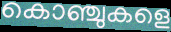
കൊഞ്ചുകളെ